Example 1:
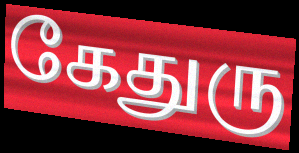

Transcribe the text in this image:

கேதுரு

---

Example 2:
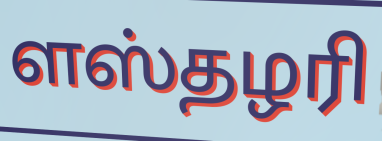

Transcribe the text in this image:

ளஸ்தழரி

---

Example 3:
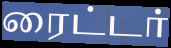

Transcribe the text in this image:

ரைட்டர்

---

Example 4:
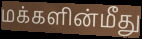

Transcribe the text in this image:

மக்களின்மீது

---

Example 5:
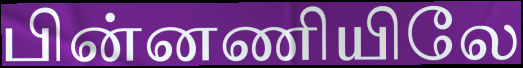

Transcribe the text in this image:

பின்னணியிலே